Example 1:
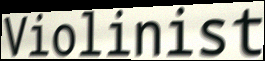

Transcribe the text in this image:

Violinist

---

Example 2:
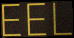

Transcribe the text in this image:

EEL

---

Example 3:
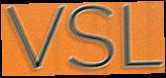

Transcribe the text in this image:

VSL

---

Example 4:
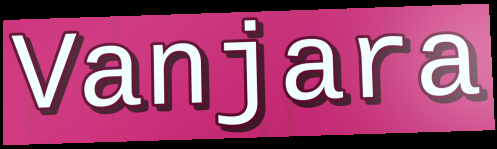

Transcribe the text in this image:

Vanjara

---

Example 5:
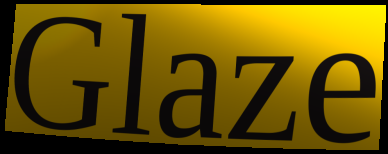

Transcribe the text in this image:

Glaze